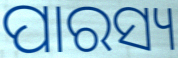
ପାରସ୍ୟ